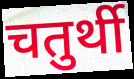
चतुर्थी